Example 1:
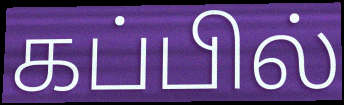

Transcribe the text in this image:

கப்பில்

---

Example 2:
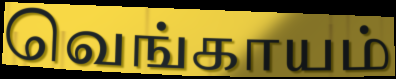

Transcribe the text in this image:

வெங்காயம்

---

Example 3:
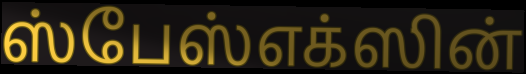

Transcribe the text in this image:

ஸ்பேஸ்எக்ஸின்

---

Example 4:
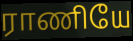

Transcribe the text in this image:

ராணியே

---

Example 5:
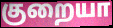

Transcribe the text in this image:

குறையா